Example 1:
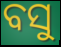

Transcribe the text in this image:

ବସୁ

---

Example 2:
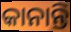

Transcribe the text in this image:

କାନାନ୍ତି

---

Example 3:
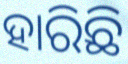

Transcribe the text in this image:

ହାରିଛି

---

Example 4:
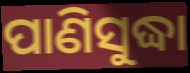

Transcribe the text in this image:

ପାଣିସୁଦ୍ଧା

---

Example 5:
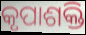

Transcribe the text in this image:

କୃପାଶକ୍ତି